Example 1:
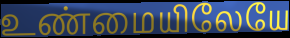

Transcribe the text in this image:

உண்மையிலேயே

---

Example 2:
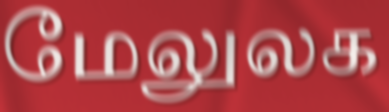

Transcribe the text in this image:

மேலுலக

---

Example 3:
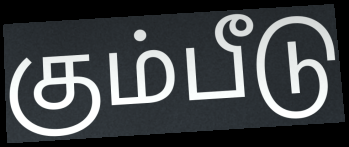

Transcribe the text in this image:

கும்பீடு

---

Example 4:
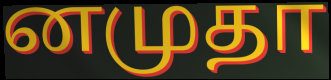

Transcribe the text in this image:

னமுதா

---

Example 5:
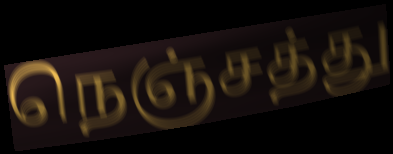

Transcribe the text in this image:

நெஞ்சத்து